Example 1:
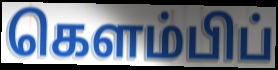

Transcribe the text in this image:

கௌம்பிப்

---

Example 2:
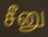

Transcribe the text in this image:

சீனு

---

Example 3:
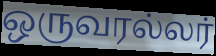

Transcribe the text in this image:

ஒருவரல்லர்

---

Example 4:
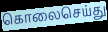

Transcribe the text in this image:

கொலைசெய்து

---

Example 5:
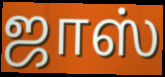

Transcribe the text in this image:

ஜாஸ்